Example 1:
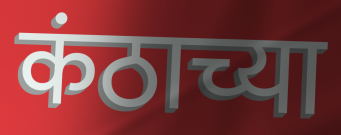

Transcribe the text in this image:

कंठाच्या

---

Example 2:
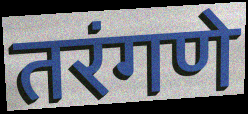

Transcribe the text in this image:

तरंगणे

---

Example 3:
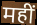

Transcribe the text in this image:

महीं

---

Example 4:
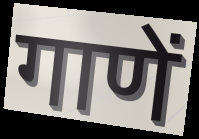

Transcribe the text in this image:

गाणें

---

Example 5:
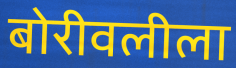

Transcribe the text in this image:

बोरीवलीला